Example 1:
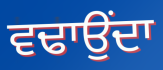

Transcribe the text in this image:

ਵਢਾਉਂਦਾ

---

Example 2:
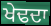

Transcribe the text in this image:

ਖੇਢਦਾ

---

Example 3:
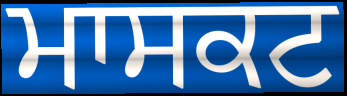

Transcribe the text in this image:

ਮਾਸਕਟ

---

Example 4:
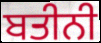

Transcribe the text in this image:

ਬਤੀਨੀ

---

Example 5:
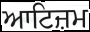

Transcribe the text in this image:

ਆਟਿਜ਼ਮ